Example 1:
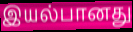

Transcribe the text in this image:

இயல்பானது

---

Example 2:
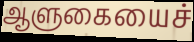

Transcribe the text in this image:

ஆளுகையைச்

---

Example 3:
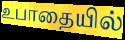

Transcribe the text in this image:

உபாதையில்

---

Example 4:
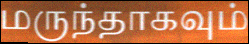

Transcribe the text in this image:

மருந்தாகவும்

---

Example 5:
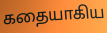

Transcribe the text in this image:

கதையாகிய